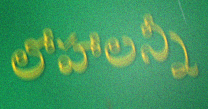
లోహాలన్నీ